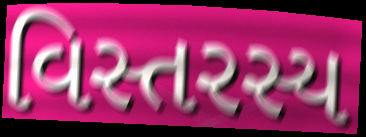
વિસ્તરસ્ય